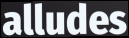
alludes